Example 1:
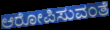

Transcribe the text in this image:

ಆರೋಪಿಸುವಂತೆ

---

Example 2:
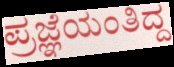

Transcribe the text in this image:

ಪ್ರಜ್ಞೆಯಂತಿದ್ದ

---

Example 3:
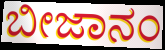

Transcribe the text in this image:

ಬೀಜಾನಂ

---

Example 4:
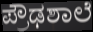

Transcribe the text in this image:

ಪ್ರೌಢಶಾಲೆ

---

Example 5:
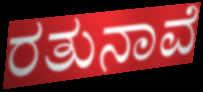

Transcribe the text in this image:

ರತುನಾವೆ